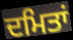
ਦਮਿਤਾਂ